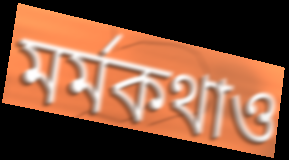
মর্মকথাও